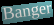
Banger